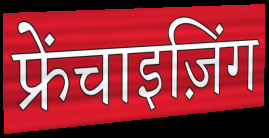
फ्रेंचाइज़िंग